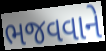
ભજવવાને